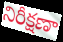
నిరీక్షణా